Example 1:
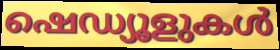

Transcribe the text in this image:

ഷെഡ്യൂളുകൾ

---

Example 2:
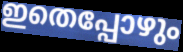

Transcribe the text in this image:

ഇതെപ്പോഴും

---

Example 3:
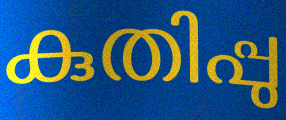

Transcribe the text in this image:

കുതിപ്പു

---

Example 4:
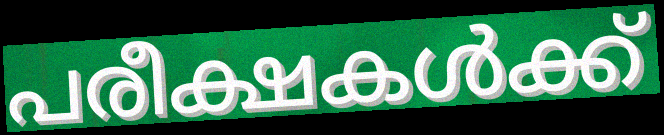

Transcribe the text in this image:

പരീക്ഷകൾക്ക്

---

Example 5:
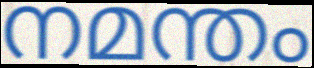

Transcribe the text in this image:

നമന്തം